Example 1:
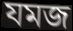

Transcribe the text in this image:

যমজ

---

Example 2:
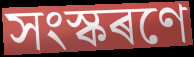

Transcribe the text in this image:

সংস্কৰণে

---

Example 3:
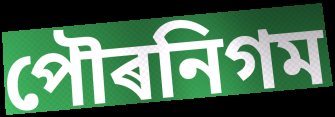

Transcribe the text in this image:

পৌৰনিগম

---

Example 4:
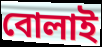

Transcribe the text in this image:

বোলাই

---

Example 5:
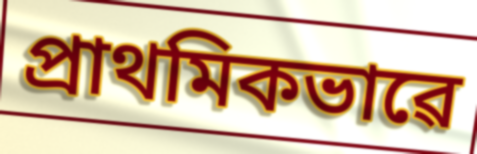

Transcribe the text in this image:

প্ৰাথমিকভাৱে